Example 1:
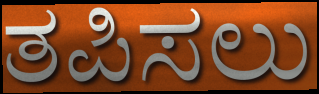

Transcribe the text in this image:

ತಪಿಸಲು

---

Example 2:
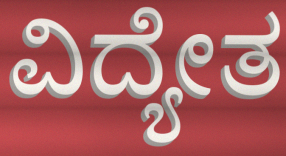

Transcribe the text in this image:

ವಿದ್ಯೇತ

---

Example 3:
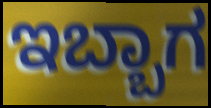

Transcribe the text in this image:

ಇಬ್ಬಾಗ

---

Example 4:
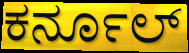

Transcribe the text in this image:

ಕರ್ನೂಲ್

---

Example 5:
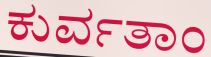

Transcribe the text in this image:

ಕುರ್ವತಾಂ